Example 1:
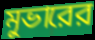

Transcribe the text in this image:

মুভারের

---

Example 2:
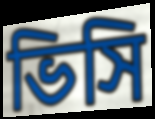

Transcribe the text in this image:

ভিসি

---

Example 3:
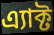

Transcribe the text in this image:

এ্যাক্ট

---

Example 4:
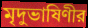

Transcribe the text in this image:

মৃদুভাষিণীর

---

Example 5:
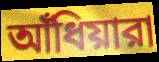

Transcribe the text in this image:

আঁধিয়ারা